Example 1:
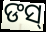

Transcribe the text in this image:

ଙସ୍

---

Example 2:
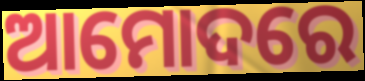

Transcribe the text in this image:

ଆମୋଦରେ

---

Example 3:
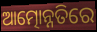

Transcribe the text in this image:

ଆତ୍ମୋନ୍ନତିରେ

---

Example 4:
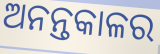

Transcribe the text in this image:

ଅନନ୍ତକାଳର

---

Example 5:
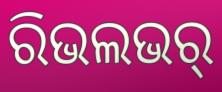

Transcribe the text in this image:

ରିଭଲଭର୍